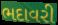
ભદાવરી